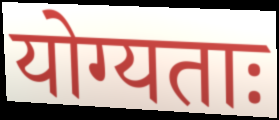
योग्यताः